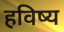
हविष्य